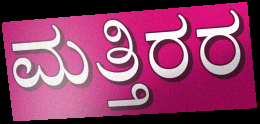
ಮತ್ತಿರರ